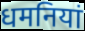
धमनियां